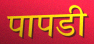
पापडी